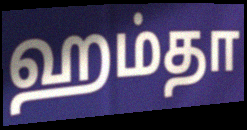
ஹம்தா